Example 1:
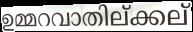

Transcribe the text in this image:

ഉമ്മറവാതില്ക്കല്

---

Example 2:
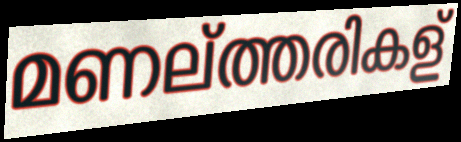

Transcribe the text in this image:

മണല്ത്തരികള്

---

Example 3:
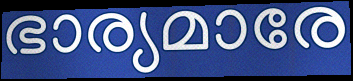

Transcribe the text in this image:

ഭാര്യമാരേ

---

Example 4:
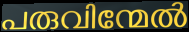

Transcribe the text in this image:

പരുവിന്മേൽ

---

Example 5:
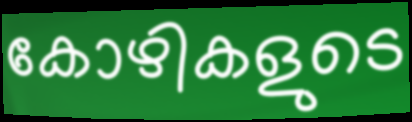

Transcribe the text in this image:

കോഴികളുടെ